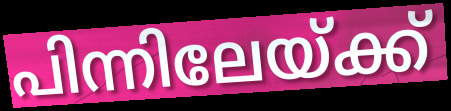
പിന്നിലേയ്ക്ക്